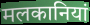
मलकानियां